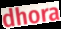
dhora